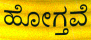
ಹೋಗ್ತವೆ